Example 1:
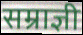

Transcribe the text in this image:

सम्राज्ञी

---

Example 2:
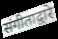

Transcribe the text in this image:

संगीताद्वारे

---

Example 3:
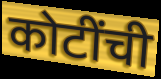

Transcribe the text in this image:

कोटींची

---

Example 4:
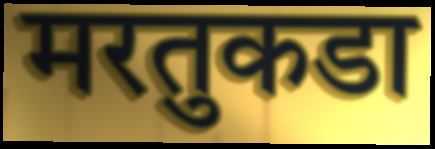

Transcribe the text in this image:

मरतुकडा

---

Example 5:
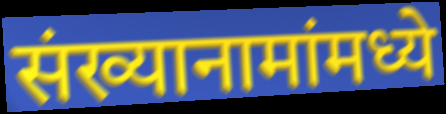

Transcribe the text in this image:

संख्यानामांमध्ये